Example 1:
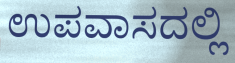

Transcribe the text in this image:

ಉಪವಾಸದಲ್ಲಿ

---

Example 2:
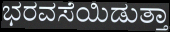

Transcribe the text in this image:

ಭರವಸೆಯಿಡುತ್ತಾ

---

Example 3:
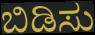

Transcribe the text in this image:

ಬಿಡಿಸು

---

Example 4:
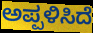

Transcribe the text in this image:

ಅಪ್ಪಳಿಸಿದೆ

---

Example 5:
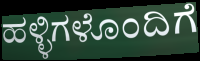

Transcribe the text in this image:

ಹಳ್ಳಿಗಳೊಂದಿಗೆ